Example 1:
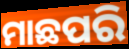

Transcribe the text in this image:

ମାଛପରି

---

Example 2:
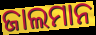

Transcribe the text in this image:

ଜାଲମାନ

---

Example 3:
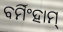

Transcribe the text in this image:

ବର୍ମିଂହାମ୍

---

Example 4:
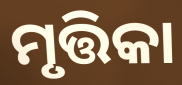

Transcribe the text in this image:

ମୃତ୍ତିକା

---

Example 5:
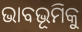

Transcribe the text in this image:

ଭାବଭୂମିକୁ